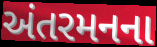
અંતરમનના